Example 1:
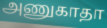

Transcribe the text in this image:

அணுகாதா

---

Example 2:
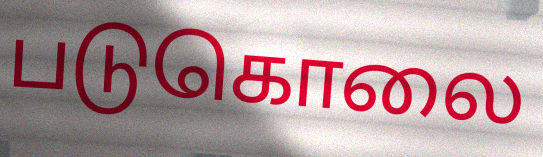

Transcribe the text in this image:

படுகொலை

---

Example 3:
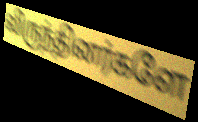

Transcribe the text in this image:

விருந்தினர்களே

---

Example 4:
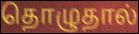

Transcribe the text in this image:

தொழுதால்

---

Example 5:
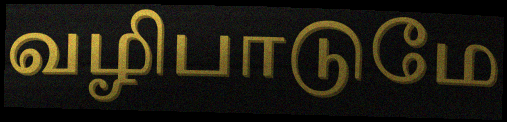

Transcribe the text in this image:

வழிபாடுமே